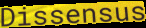
Dissensus